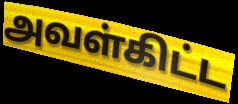
அவள்கிட்ட